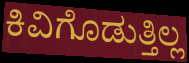
ಕಿವಿಗೊಡುತ್ತಿಲ್ಲ